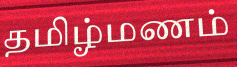
தமிழ்மணம்